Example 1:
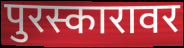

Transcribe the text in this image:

पुरस्कारावर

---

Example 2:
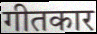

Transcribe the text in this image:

गीतकार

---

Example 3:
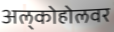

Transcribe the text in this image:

अल्कोहोलवर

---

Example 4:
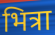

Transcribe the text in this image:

भित्रा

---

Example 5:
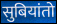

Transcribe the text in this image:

सुबियांतो